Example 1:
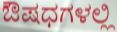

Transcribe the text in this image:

ಔಷಧಗಳಲ್ಲಿ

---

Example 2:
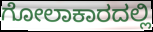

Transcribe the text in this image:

ಗೋಲಾಕಾರದಲ್ಲಿ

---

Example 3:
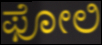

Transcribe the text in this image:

ಫೋಲಿ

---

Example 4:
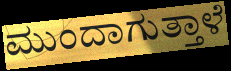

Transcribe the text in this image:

ಮುಂದಾಗುತ್ತಾಳೆ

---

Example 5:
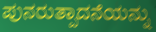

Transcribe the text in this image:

ಪುನರುತ್ಪಾದನೆಯನ್ನು